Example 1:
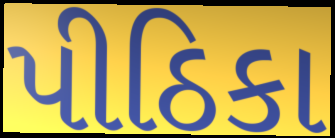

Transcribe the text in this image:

પીઠિકા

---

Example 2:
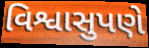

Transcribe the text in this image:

વિશ્વાસુપણે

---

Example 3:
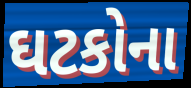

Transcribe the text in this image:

ઘટકોના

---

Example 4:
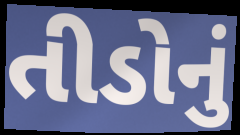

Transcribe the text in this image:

તીડોનું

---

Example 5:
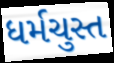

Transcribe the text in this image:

ધર્મચુસ્ત